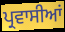
ਪ੍ਰਵਾਸੀਆਂ